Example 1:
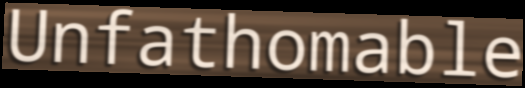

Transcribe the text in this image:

Unfathomable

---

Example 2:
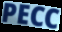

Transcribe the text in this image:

PECC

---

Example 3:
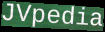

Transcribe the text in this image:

JVpedia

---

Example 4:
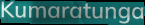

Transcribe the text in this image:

Kumaratunga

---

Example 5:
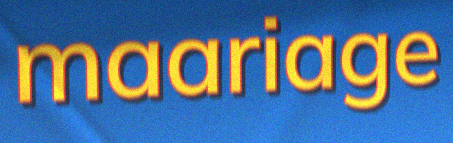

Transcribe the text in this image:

maariage